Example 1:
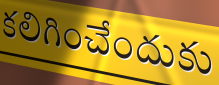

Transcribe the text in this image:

కలిగించేందుకు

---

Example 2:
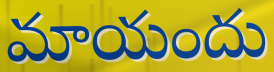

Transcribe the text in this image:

మాయందు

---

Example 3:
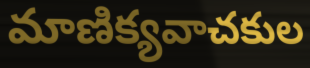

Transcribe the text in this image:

మాణిక్యవాచకుల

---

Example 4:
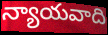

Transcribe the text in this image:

న్యాయవాది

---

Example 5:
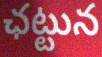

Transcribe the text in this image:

ఛట్టున